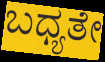
ಬಧ್ಯತೇ